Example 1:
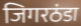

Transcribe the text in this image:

जिगरठंडा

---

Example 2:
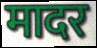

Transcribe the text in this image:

मादर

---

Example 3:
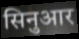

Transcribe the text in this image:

सिनुआर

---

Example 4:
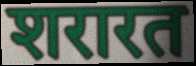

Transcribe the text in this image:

शरारत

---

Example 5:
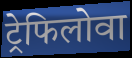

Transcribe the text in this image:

ट्रेफिलोवा